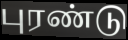
புரண்டு